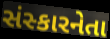
સંસ્કારનેતા